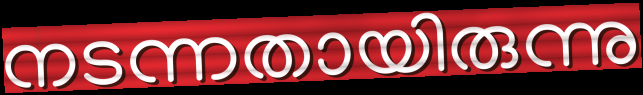
നടന്നതായിരുന്നു